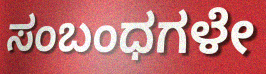
ಸಂಬಂಧಗಳೇ